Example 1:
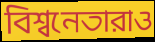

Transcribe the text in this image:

বিশ্বনেতারাও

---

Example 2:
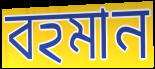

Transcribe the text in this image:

বহমান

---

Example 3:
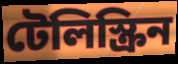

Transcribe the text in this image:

টেলিস্ক্রিন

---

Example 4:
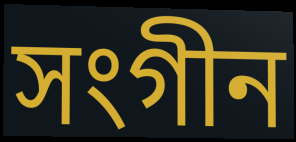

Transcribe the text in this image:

সংগীন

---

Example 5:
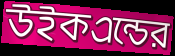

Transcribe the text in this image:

উইকএন্ডের